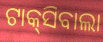
ଟାକ୍‌ସିବାଲା